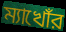
ম্যাখোঁর